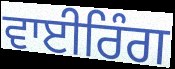
ਵਾਈਰਿੰਗ